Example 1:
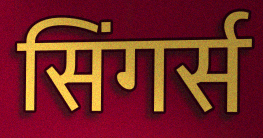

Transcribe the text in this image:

सिंगर्स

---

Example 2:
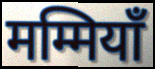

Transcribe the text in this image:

मम्मियाँ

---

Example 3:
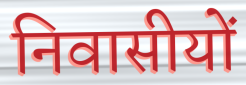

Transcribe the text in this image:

निवासीयों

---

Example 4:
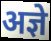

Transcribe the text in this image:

अज्ञे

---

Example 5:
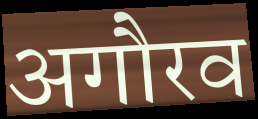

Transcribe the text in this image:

अगौरव